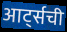
आर्ट्सची